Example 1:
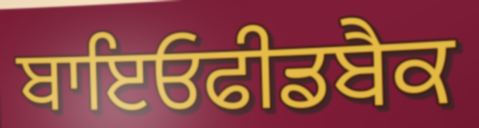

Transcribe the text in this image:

ਬਾਇਓਫੀਡਬੈਕ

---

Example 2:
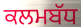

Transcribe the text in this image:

ਕਲਮਬੱਧ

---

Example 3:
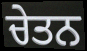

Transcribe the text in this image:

ਚੇਤਨ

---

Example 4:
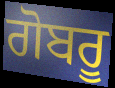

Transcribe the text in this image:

ਗੋਬਰੂ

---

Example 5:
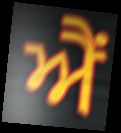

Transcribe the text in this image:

ਐੰ